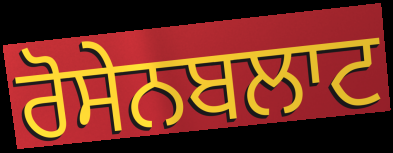
ਰੋਸੇਨਬਲਾਟ